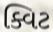
ક્વિટ